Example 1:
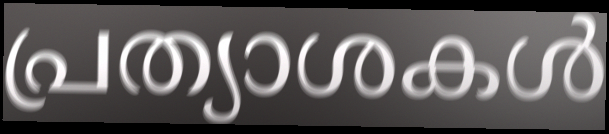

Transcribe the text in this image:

പ്രത്യാശകൾ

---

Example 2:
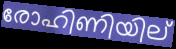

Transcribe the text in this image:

രോഹിണിയില്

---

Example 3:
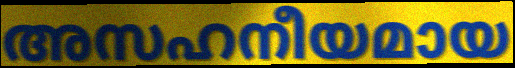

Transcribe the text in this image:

അസഹനീയമായ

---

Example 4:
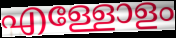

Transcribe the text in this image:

എള്ളോളം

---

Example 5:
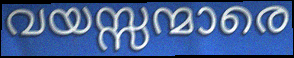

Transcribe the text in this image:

വയസ്സന്മാരെ